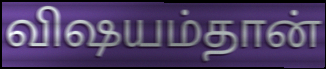
விஷயம்தான்